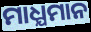
ମାଧ୍ଯମାନ